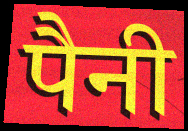
पैनी